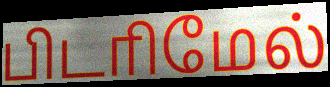
பிடரிமேல்